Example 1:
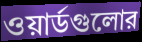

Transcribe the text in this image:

ওয়ার্ডগুলোর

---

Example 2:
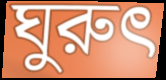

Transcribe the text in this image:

ঘুরুৎ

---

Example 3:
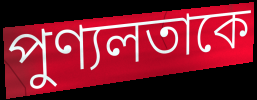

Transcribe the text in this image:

পুণ্যলতাকে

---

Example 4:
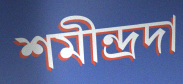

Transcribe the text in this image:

শমীন্দ্রদা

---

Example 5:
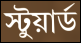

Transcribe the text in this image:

স্টুয়ার্ড